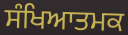
ਸੰਖਿਆਤਮਕ